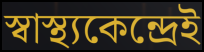
স্বাস্থ্যকেন্দ্রেই